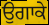
ਉਗਾਕੇ